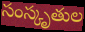
సంస్కృతుల